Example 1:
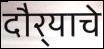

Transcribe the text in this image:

दौर्‍याचे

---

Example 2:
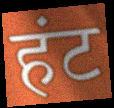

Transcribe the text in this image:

हंट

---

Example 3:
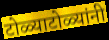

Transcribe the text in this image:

टोळ्याटोळ्यांनी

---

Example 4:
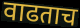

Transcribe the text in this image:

वाढताच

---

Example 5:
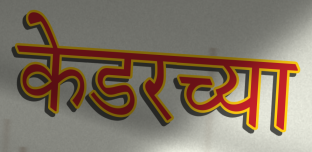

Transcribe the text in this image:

केडरच्या